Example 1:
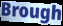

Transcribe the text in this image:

Brough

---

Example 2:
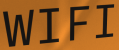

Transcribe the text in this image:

WIFI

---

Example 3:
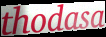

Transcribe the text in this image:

thodasa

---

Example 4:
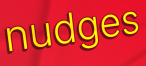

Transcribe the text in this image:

nudges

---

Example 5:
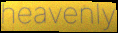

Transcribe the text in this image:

heavenly